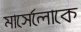
মার্সেলোকে